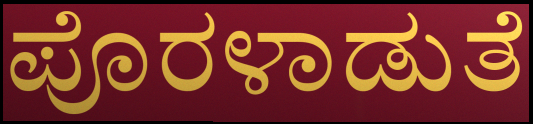
ಪೊರಳಾಡುತೆ